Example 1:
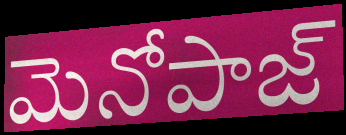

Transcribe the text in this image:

మెనోపాజ్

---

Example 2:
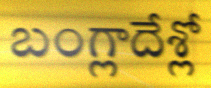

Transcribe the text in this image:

బంగ్లాదేశ్లో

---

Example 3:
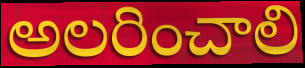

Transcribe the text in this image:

అలరించాలి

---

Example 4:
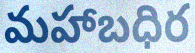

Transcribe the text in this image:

మహాబధిర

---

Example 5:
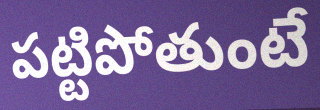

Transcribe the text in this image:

పట్టిపోతుంటే